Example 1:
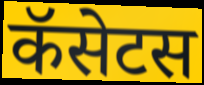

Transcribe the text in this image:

कॅसेटस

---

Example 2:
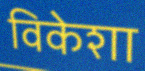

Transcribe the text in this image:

विकेशा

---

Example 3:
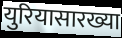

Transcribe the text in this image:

युरियासारख्या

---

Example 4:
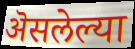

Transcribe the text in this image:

ऄसलेल्या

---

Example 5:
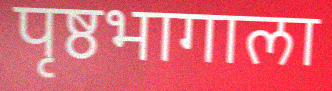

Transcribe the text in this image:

पृष्ठभागाला